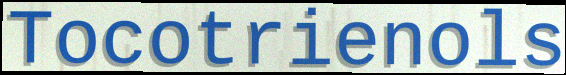
Tocotrienols